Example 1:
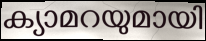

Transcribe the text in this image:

ക്യാമറയുമായി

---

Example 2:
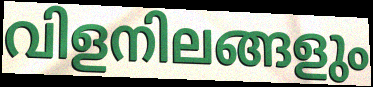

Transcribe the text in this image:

വിളനിലങ്ങളും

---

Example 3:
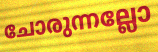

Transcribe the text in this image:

ചോരുന്നല്ലോ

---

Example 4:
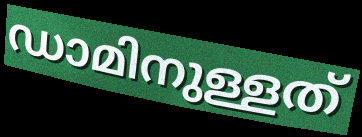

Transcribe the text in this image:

ഡാമിനുള്ളത്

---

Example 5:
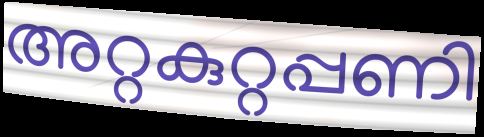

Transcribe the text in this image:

അറ്റകുറ്റപ്പണി